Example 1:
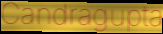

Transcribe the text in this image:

Candragupta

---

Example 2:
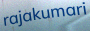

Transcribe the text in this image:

rajakumari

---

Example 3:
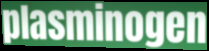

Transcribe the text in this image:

plasminogen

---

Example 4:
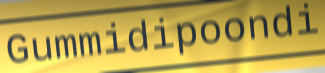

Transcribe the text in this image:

Gummidipoondi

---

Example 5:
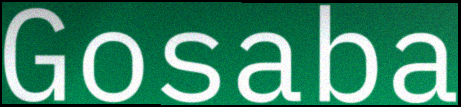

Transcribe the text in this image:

Gosaba